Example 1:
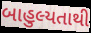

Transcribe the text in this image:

બાહુલ્યતાથી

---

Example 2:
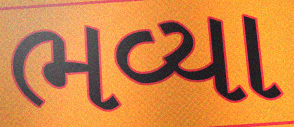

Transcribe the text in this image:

ભવ્યા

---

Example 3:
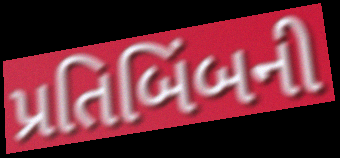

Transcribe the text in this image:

પ્રતિબિંબની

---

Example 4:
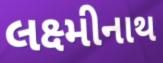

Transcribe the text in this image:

લક્ષ્મીનાથ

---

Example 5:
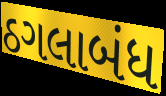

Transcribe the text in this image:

ઠગલાબંધ